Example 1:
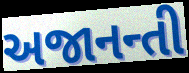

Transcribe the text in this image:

અજાનન્તી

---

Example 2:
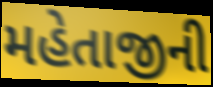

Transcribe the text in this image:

મહેતાજીની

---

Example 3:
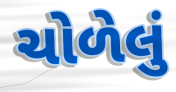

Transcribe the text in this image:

ચોળેલું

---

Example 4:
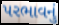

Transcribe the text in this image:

પરભાવનું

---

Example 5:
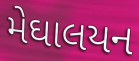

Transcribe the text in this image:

મેઘાલયન